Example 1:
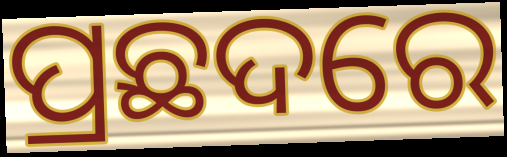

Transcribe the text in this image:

ପ୍ରଛଦରେ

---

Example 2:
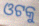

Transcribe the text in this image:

ଓଟକୁ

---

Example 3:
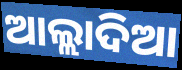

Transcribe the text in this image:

ଆଲ୍ଲାଦିଆ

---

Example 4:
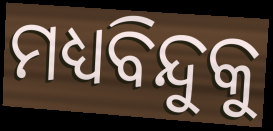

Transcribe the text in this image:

ମଧ୍ୟବିନ୍ଦୁକୁ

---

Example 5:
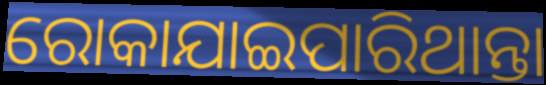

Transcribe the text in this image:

ରୋକାଯାଇପାରିଥାନ୍ତା